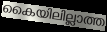
കൈയിലില്ലാത്ത